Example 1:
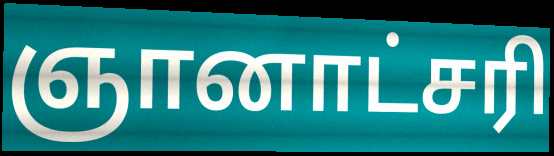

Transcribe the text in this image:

ஞானாட்சரி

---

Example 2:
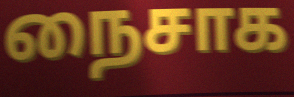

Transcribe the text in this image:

நைசாக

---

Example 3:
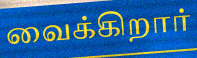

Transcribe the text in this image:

வைக்கிறார்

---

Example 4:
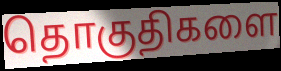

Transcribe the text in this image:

தொகுதிகளை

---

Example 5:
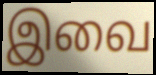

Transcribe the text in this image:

இவை